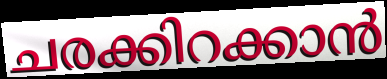
ചരക്കിറക്കാൻ